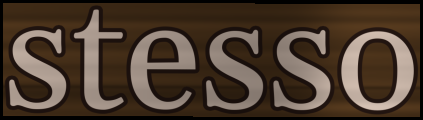
stesso